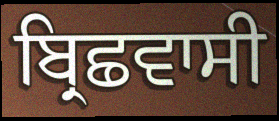
ਬ੍ਰਿਛਵਾਸੀ